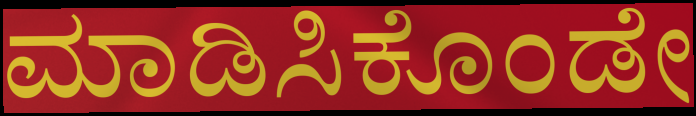
ಮಾಡಿಸಿಕೊಂಡೇ